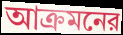
আক্রমনের